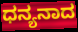
ಧನ್ಯನಾದ